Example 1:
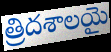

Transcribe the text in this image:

త్రిదశాలయై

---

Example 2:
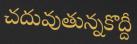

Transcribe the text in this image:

చదువుతున్నకొద్దీ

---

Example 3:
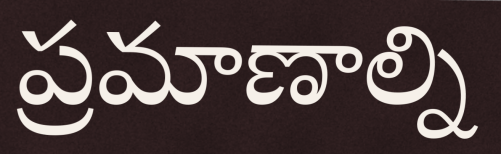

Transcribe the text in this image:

ప్రమాణాల్ని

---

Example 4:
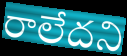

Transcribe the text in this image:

రాలేదని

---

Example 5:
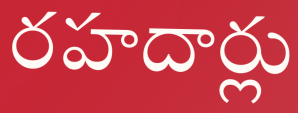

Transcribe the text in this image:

రహదార్లు